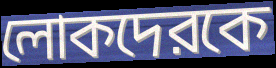
লোকদেরকে